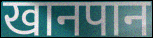
खानपान